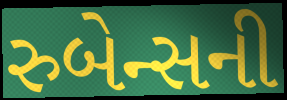
રુબેન્સની